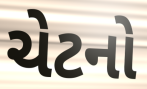
ચેટનો